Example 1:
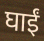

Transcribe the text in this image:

घाईं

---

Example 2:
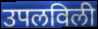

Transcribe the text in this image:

उपलविली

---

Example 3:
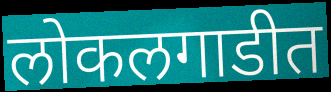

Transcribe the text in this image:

लोकलगाडीत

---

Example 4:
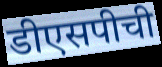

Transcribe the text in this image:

डीएसपीची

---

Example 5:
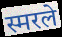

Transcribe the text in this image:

स्मरले